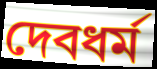
দেবধর্ম